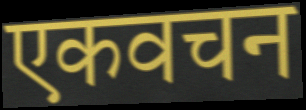
एकवचन